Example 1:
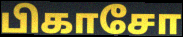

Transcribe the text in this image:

பிகாசோ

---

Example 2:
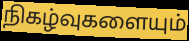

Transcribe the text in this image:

நிகழ்வுகளையும்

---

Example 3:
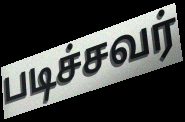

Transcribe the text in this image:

படிச்சவர்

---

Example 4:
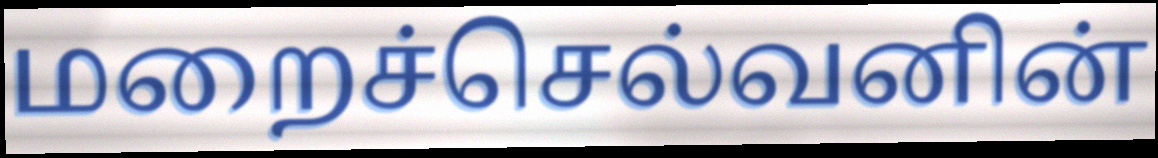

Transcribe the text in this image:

மறைச்செல்வனின்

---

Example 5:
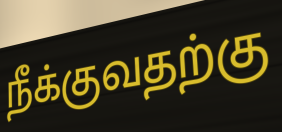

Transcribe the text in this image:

நீக்குவதற்கு